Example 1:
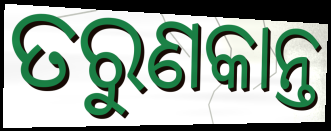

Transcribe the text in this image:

ତରୁଣକାନ୍ତ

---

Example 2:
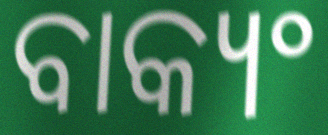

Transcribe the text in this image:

ବାକ୍ୟଂ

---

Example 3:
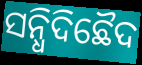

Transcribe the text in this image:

ସନ୍ଧିଦିଛୈଦ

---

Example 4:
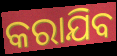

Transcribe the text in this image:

କରାଯିବ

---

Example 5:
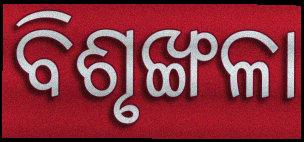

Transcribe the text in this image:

ବିଶୃଙ୍ଖଳା